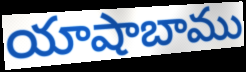
యాషాబాము